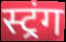
स्ट्रंग